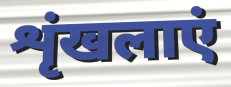
शृंखलाएं